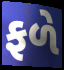
ફળે